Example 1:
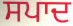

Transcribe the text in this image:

ਸਪਾਦ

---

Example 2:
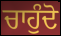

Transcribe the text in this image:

ਚਾਹੁੰਦੋ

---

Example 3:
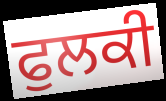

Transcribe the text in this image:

ਫੁਲਕੀ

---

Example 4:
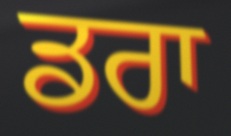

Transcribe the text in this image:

ਡਰਾ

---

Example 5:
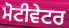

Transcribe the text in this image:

ਮੋਟੀਵੇਟਰ